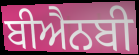
ਬੀਐਨਬੀ